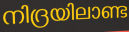
നിദ്രയിലാണ്ട